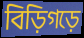
বিড়িগড়ে